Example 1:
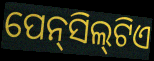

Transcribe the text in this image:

ପେନ୍‍ସିଲ୍‍ଟିଏ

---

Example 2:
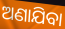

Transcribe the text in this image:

ଅଣାଯିବା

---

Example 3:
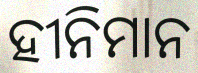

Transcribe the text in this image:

ହୀନିମାନ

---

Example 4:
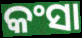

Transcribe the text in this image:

କଂସା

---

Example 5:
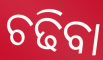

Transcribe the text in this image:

ଚଢିବା